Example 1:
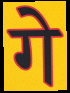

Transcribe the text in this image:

गे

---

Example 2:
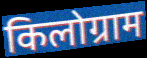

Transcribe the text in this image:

किलोग्राम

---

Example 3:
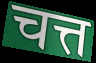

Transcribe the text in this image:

चत्त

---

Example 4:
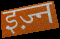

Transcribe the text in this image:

इज़्न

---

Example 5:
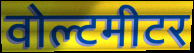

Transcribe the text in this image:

वोल्टमीटर